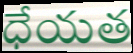
ధేయత